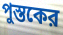
পুস্তকের